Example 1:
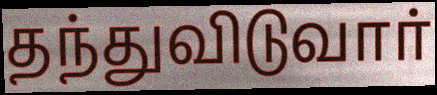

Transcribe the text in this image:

தந்துவிடுவார்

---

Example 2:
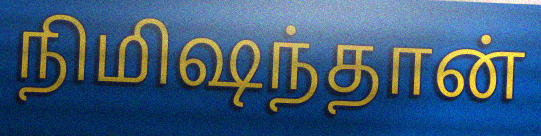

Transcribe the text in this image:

நிமிஷந்தான்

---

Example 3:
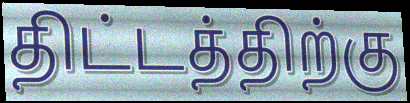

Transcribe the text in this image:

திட்டத்திற்கு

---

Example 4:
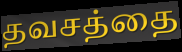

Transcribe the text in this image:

தவசத்தை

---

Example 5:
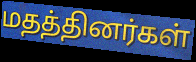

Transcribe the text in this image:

மதத்தினர்கள்